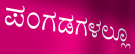
ಪಂಗಡಗಳಲ್ಲೂ